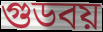
গুডবয়